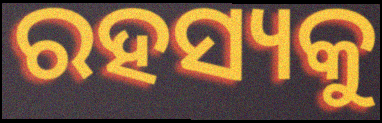
ରହସ୍ୟକୁ